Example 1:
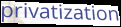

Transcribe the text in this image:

privatization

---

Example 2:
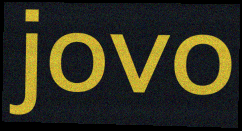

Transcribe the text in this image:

jovo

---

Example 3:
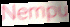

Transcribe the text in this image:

Nempu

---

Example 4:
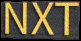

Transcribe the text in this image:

NXT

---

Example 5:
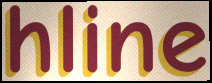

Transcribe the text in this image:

hline